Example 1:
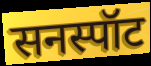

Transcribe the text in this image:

सनस्पॉट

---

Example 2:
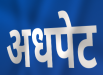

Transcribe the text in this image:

अधपेट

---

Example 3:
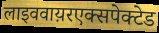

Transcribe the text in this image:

लाइववाय़रएक्सपेक्टेड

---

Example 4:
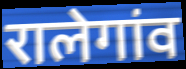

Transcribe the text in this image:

रालेगांव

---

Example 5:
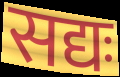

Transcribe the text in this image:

सद्यः